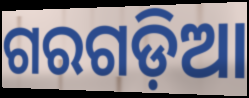
ଗରଗଡ଼ିଆ